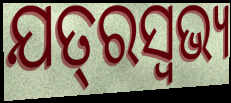
ଯତ୍‌ରସ୍ଵଭ୍ୟ